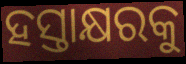
ହସ୍ତାକ୍ଷରକୁ